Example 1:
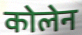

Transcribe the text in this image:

कोलेन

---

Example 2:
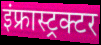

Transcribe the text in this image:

इंफ्रास्ट्रक्टर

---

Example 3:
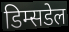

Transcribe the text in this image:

डिम्सडेल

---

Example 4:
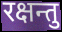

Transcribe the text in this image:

रक्षन्तु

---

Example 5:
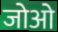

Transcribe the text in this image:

जोओ